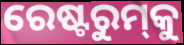
ରେଷ୍ଟରୁମ୍‌କୁ